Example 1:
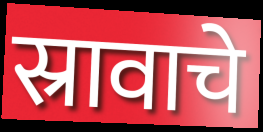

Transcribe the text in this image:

स्रावाचे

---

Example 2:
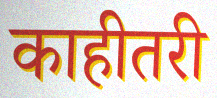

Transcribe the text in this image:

काहीतरी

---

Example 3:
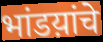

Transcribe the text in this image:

भांडय़ांचे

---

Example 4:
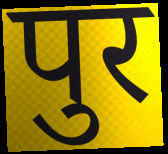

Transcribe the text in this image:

पुर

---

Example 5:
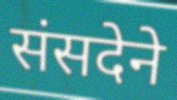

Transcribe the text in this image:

संसदेने